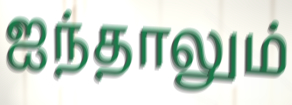
ஐந்தாலும்